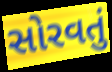
સોરવતું